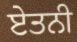
ਏਤਨੀ